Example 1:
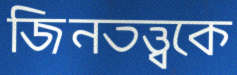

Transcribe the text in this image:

জিনতত্ত্বকে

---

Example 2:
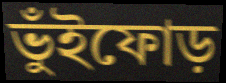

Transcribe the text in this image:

ভুঁইফোড়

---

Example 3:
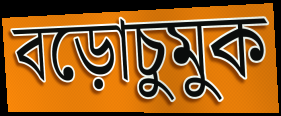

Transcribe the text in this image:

বড়োচুমুক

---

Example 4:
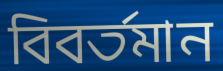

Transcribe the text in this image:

বিবর্তমান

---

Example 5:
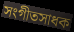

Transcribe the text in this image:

সংগীতসাধক